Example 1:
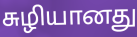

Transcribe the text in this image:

சுழியானது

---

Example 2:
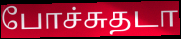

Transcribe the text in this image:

போச்சுதடா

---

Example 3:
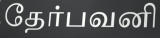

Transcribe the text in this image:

தேர்பவனி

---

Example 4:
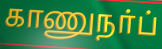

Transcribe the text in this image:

காணுநர்ப்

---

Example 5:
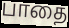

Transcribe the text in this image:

பாதை